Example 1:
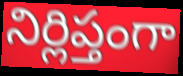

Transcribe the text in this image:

నిర్లిప్తంగా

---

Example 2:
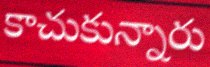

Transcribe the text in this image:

కాచుకున్నారు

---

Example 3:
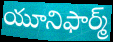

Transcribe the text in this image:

యూనిఫార్మ్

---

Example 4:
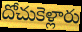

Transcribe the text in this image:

దోచుకెళ్లారు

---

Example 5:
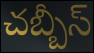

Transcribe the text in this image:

చబ్బీస్